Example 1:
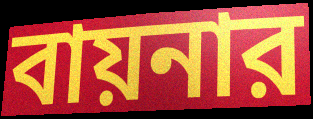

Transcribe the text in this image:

বায়নার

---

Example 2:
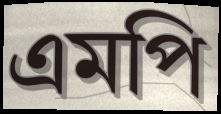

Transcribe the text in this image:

এমপি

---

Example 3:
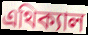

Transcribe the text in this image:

এথিক্যাল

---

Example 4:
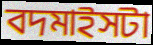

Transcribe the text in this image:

বদমাইসটা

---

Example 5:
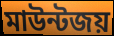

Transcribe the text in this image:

মাউন্টজয়